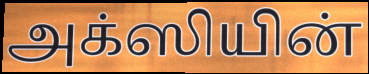
அக்ஸியின்